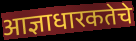
आज्ञाधारकतेचे